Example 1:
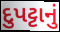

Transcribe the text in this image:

દુપટ્ટાનું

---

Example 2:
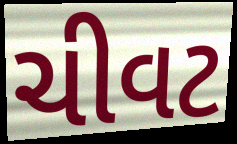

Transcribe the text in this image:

ચીવટ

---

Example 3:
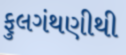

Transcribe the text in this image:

ફુલગંથણીથી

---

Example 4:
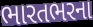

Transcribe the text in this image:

ભારતભરના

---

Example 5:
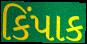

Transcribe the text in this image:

કિંપાક